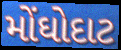
મોંઘોદાટ